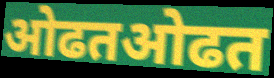
ओढतओढत